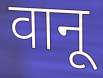
वानू